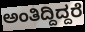
ಅಂತಿದ್ದಿದ್ದರೆ